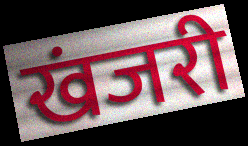
खंजरी